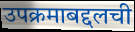
उपक्रमाबद्दलची